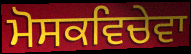
ਮੋਸਕਵਿਚੇਵਾ